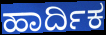
ಹಾರ್ದಿಕ